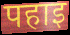
पहाइ